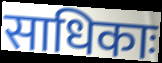
साधिकाः